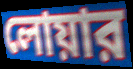
লোয়ার